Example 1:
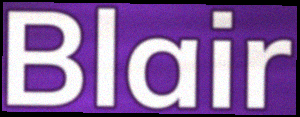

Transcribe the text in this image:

Blair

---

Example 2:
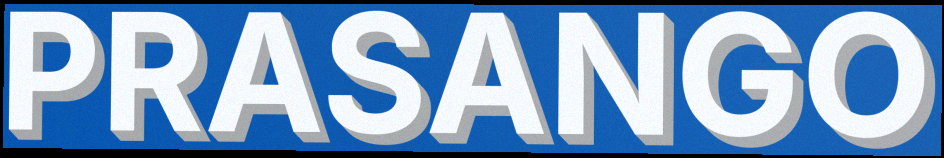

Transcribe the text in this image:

PRASANGO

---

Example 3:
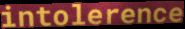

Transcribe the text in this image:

intolerence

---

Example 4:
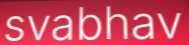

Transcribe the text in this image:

svabhav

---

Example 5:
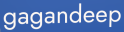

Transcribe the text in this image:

gagandeep